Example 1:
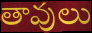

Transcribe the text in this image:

తావులు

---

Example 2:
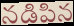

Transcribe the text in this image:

నడిపిన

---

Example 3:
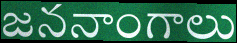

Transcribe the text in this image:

జననాంగాలు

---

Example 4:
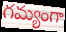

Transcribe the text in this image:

గమ్యంగా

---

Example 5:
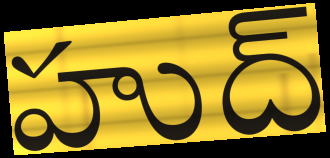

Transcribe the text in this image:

హుద్